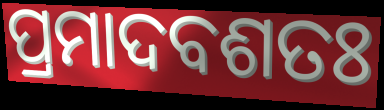
ପ୍ରମାଦବଶତଃ